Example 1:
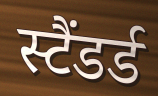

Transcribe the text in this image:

स्टैंडर्ड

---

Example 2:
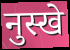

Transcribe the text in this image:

नुस्खे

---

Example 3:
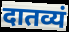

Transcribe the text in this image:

दातव्यं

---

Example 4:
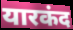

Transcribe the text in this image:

यारकंद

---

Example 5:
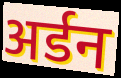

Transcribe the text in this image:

अर्डन